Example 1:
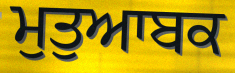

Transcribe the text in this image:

ਮੁਤੁਆਬਕ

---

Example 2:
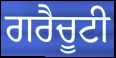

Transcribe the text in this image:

ਗਰੈਚੂਟੀ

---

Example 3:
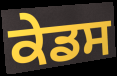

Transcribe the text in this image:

ਕੇਡਸ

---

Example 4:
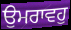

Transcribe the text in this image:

ਉਮਰਾਵਹੁ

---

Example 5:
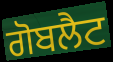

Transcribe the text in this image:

ਗੋਬਲੈਟ